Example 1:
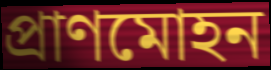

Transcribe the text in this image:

প্রাণমোহন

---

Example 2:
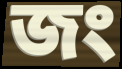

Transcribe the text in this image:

জং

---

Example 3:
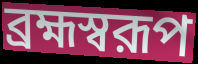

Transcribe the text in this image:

ব্রহ্মস্বরূপ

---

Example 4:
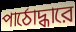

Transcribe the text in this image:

পাঠোদ্ধারে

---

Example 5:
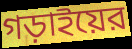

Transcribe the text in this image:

গড়াইয়ের